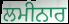
ਲਮੀਨਾਰ